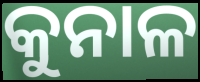
କୁନାଳ